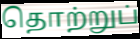
தொற்றுப்